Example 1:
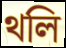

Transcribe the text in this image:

থলি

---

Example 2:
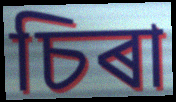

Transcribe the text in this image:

চিৰা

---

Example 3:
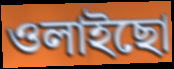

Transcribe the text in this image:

ওলাইছো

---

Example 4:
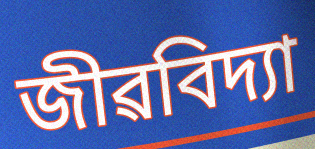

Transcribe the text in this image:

জীৱবিদ্যা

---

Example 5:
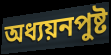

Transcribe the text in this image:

অধ্যয়নপুষ্ট